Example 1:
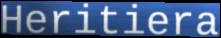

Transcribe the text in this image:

Heritiera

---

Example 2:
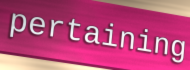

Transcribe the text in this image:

pertaining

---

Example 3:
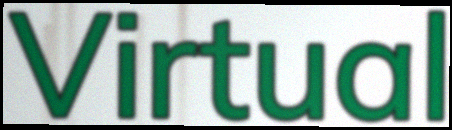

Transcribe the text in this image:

Virtual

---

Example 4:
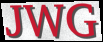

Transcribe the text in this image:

JWG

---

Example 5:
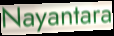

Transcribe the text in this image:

Nayantara